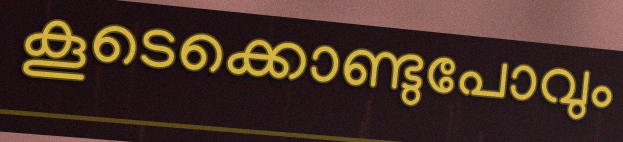
കൂടെക്കൊണ്ടുപോവും